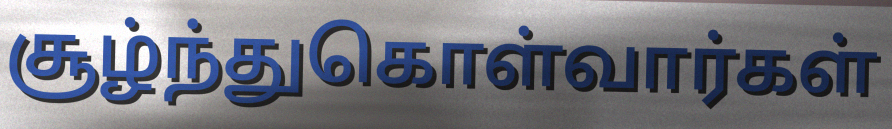
சூழ்ந்துகொள்வார்கள்